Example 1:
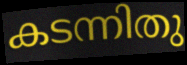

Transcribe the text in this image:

കടന്നിതു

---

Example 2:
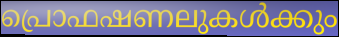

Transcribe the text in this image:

പ്രൊഫഷണലുകൾക്കും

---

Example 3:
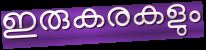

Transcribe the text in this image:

ഇരുകരകളും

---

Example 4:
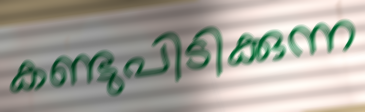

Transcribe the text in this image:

കണ്ടുപിടിക്കുന്ന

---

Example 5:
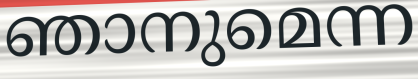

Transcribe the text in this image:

ഞാനുമെന്ന